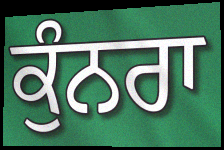
ਕੁੰਨਰਾ